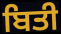
ਬਿਤੀ